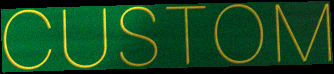
CUSTOM